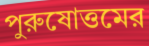
পুরুষোত্তমের